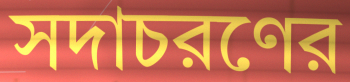
সদাচরণের